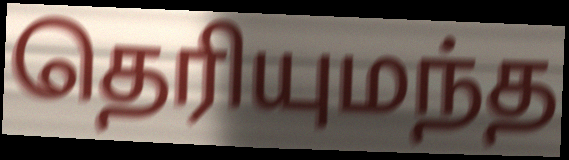
தெரியுமந்த